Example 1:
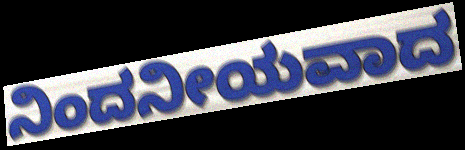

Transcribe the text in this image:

ನಿಂದನೀಯವಾದ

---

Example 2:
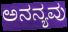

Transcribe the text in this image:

ಅನನ್ಯವು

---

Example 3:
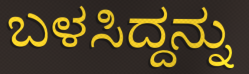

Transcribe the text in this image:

ಬಳಸಿದ್ದನ್ನು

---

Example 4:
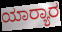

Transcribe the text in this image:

ಯಾರ‍್ಯಾರ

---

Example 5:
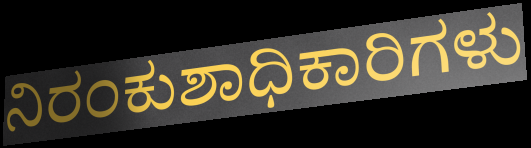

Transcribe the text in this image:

ನಿರಂಕುಶಾಧಿಕಾರಿಗಳು